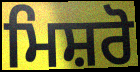
ਮਿਸ਼ਰੋ